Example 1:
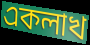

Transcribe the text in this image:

একলাখ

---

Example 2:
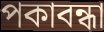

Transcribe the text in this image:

পকাবন্ধা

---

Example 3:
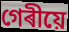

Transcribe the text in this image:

গেৰীয়ে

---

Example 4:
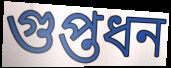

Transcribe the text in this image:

গুপ্তধন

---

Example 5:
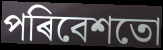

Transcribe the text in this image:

পৰিবেশতো